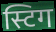
स्टिग